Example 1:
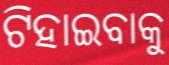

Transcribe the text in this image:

ଟିହାଇବାକୁ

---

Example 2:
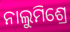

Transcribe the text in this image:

ନାଲୁମିଶ୍ରେ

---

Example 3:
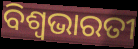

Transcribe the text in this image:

ବିଶ୍ୱଭାରତୀ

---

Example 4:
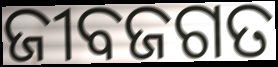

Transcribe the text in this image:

ଜୀବଜଗତ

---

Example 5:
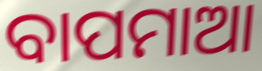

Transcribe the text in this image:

ବାପମାଆ